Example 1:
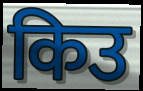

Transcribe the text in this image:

किउ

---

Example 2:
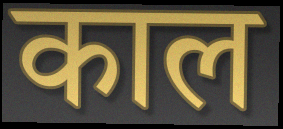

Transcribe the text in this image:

काल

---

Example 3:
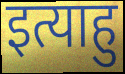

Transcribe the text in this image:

इत्याहु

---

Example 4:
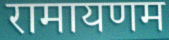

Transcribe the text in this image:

रामायणम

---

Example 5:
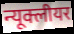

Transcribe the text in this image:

न्यूक्लीयर